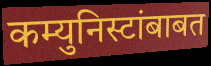
कम्युनिस्टांबाबत